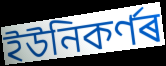
ইউনিকৰ্ণৰ